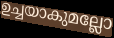
ഉച്ചയാകുമല്ലോ